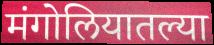
मंगोलियातल्या